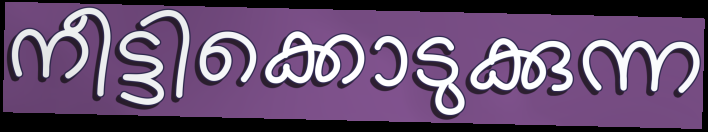
നീട്ടിക്കൊടുക്കുന്ന